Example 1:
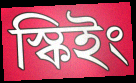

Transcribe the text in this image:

স্কিইং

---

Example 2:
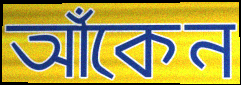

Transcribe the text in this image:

আঁকেন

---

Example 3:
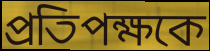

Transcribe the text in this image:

প্রতিপক্ষকে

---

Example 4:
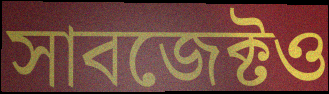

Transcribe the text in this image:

সাবজেক্টও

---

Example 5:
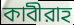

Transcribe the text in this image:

কাবীরাহ